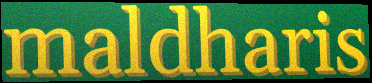
maldharis